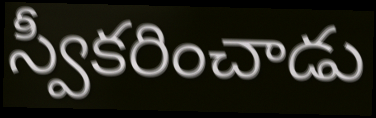
స్వీకరించాడు